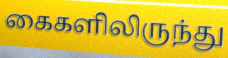
கைகளிலிருந்து